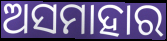
ଅସମାହାର